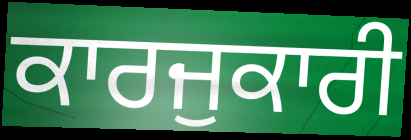
ਕਾਰਜੁਕਾਰੀ